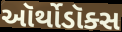
ઑર્થોડૉક્સ